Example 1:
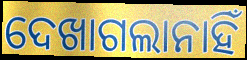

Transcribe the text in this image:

ଦେଖାଗଲାନାହିଁ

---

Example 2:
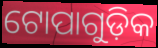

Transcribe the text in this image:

ଟୋପାଗୁଡ଼ିକ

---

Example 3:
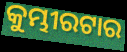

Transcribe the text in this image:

କୁମ୍ଭୀରଟାର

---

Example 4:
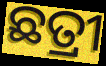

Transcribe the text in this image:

ଛତ୍ରୀ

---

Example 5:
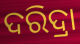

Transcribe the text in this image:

ଦରିଦ୍ରା